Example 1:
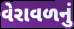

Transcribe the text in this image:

વેરાવળનું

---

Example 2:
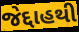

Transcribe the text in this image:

જેદ્દાહથી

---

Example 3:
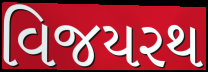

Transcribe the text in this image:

વિજયરથ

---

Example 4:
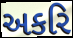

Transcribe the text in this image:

અકરિ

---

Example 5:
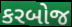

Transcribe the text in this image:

કરબોજ